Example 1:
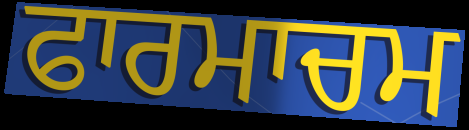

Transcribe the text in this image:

ਫਾਰਮਾਚਮ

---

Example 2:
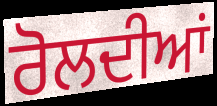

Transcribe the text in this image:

ਰੋਲਦੀਆਂ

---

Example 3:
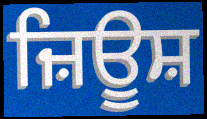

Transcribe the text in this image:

ਜ਼ਿਊਸ਼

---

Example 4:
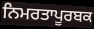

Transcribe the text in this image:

ਨਿਮਰਤਾਪੂਰਬਕ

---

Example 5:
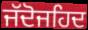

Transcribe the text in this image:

ਜੱਦੋਜਹਿਦ